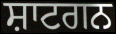
ਸ਼ਾਟਗਨ